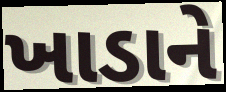
ખાડાને